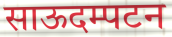
साऊदम्पटन